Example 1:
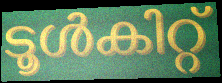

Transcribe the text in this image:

ടൂൾകിറ്റ്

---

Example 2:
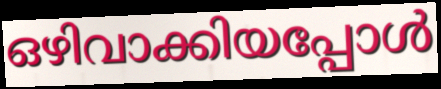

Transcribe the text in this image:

ഒഴിവാക്കിയപ്പോൾ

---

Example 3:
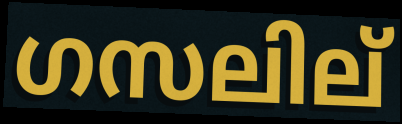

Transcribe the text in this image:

ഗസലില്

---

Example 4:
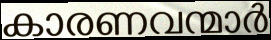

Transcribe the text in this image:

കാരണവന്മാർ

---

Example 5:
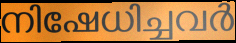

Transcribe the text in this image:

നിഷേധിച്ചവർ